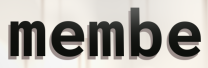
membe